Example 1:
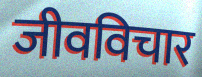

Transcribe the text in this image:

जीवविचार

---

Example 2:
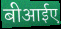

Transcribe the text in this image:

बीआईए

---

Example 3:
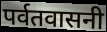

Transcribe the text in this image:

पर्वतवासनी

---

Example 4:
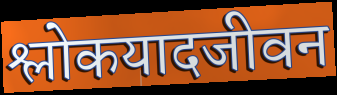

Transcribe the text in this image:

श्लोकयादजीवन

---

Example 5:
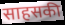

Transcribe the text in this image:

साहसकी